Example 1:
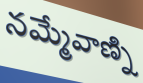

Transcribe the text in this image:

నమ్మేవాణ్ని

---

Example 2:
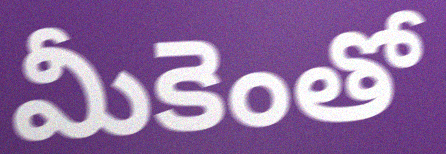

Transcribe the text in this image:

మీకెంతో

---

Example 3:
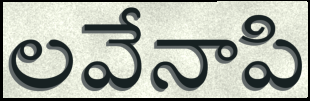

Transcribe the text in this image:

లవేనాపి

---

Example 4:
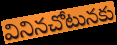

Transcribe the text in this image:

వినినచోటునకు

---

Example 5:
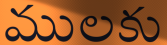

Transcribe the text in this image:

ములకు